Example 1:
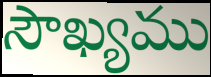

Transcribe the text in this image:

సౌఖ్యము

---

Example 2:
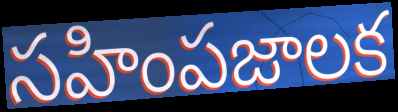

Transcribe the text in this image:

సహింపజాలక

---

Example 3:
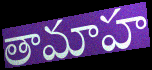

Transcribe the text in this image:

తామాహ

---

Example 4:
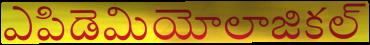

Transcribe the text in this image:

ఎపిడెమియోలాజికల్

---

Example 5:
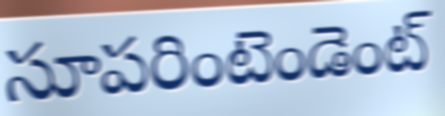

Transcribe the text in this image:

సూపరింటెండెంట్